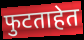
फुटताहेत